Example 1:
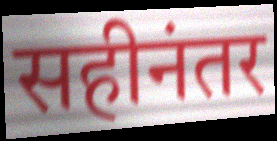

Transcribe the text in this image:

सहीनंतर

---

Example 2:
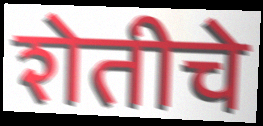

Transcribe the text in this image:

शेतीचे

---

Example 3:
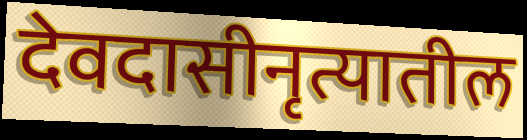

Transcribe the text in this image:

देवदासीनृत्यातील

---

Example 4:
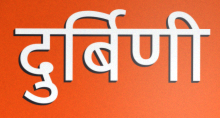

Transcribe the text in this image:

दुर्बिणी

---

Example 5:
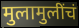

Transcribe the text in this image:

मुलामुलींचं